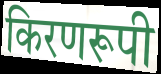
किरणरूपी